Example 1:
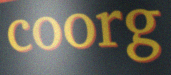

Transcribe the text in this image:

coorg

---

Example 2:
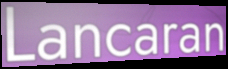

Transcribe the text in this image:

Lancaran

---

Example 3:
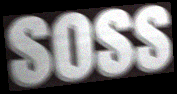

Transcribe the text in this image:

soss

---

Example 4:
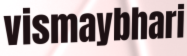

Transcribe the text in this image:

vismaybhari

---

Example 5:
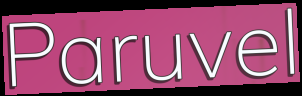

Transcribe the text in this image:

Paruvel